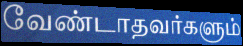
வேண்டாதவர்களும்